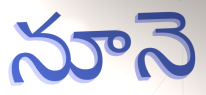
నూనె